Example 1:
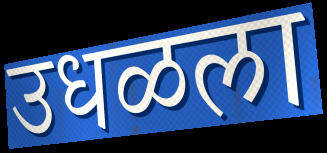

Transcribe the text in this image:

उधळला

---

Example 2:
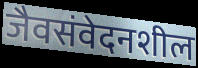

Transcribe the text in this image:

जैवसंवेदनशील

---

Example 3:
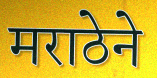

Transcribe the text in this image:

मराठेने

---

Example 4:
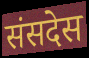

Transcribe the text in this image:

संसदेस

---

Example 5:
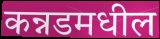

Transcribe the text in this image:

कन्नडमधील